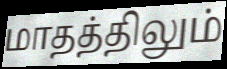
மாதத்திலும்